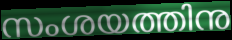
സംശയത്തിനു